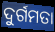
ଦୁର୍ଗମତା